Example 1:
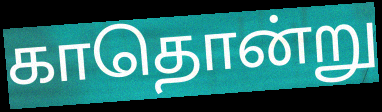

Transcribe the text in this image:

காதொன்று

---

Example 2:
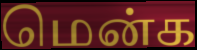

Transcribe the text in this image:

மென்க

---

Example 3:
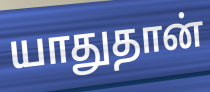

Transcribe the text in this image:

யாதுதான்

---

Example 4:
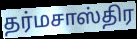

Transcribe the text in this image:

தர்மசாஸ்திர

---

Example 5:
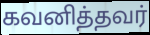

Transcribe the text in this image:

கவனித்தவர்